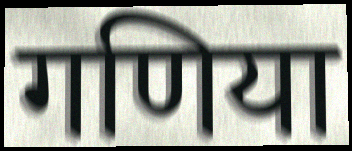
गणिया